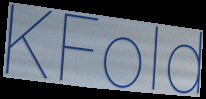
KFold